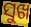
ସୁଖ